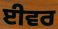
ਈਵਰ